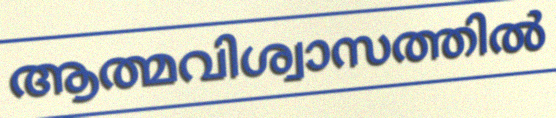
ആത്മവിശ്വാസത്തിൽ